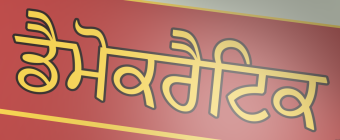
ਡੈਮੋਕਰੈਟਿਕ